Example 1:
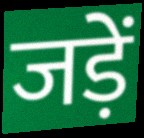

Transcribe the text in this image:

जड़ें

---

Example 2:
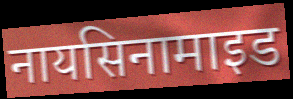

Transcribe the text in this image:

नायसिनामाइड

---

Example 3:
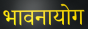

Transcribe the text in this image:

भावनायोग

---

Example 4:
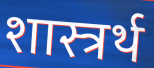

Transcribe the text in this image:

शास्त्रर्थ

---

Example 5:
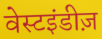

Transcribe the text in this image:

वेस्टइंडीज़